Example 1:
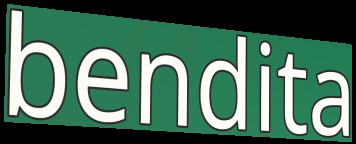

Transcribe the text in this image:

bendita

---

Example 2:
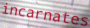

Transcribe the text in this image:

incarnates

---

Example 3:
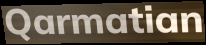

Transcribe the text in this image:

Qarmatian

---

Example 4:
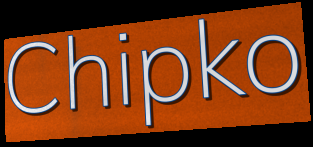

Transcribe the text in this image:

Chipko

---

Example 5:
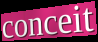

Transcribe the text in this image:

conceit